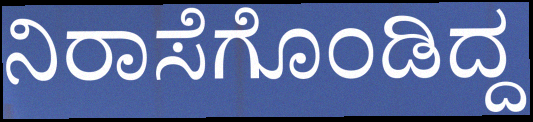
ನಿರಾಸೆಗೊಂಡಿದ್ದ